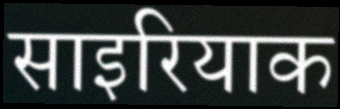
साइरियाक